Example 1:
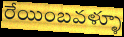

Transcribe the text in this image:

రేయింబవళ్ళూ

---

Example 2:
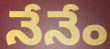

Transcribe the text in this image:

నేనేం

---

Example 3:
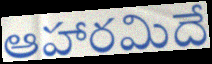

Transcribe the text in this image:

ఆహారమిదే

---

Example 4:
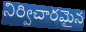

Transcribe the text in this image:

నిర్విచారమైన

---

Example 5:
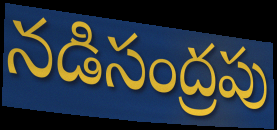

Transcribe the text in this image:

నడిసంద్రపు